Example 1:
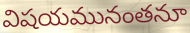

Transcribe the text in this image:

విషయమునంతనూ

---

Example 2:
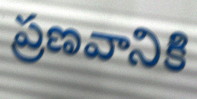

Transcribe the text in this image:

ప్రణవానికి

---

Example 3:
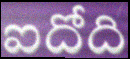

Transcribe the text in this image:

ఐదోది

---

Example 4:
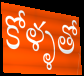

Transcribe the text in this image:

కోళ్ళతో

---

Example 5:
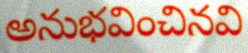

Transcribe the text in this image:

అనుభవించినవి